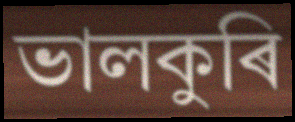
ভালকুৰি